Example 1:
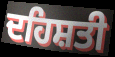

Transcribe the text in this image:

ਦਹਿਸ਼ਤੀ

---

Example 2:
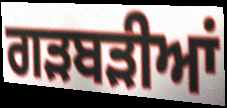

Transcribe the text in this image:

ਗੜਬੜੀਆਂ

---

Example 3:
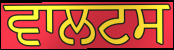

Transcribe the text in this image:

ਵਾਲਟਸ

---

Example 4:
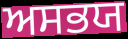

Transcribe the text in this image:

ਅਸਭਯ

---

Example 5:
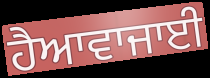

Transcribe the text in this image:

ਹੈਆਵਾਜਾਈ